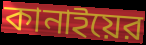
কানাইয়ের